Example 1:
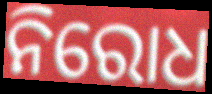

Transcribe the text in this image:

ନିରୋଧ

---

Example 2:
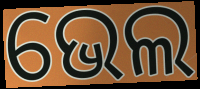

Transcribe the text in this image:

ଭେଲ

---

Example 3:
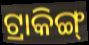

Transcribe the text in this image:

ଟ୍ରାକିଙ୍ଗ୍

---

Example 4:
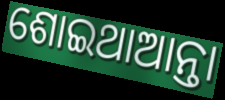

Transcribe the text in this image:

ଶୋଇଥାଆନ୍ତା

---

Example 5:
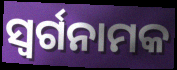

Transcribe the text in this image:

ସ୍ଵର୍ଗନାମକ